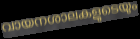
വായനശാലകളുടെയും